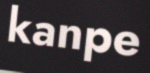
kanpe